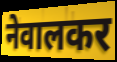
नेवालकर